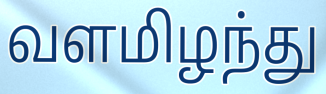
வளமிழந்து